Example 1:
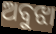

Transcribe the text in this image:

ଅବୁଝା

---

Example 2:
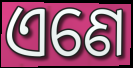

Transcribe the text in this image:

ଏଣେ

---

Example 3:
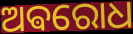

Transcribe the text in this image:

ଅଵରୋଧ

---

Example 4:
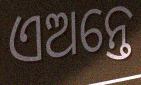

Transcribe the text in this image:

ଏଅନ୍ତେ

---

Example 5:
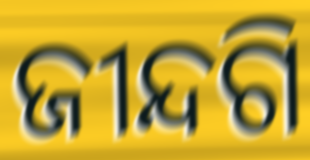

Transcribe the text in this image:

ଜୀନ୍ଦଗି